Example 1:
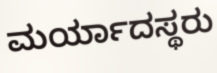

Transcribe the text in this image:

ಮರ್ಯಾದಸ್ಥರು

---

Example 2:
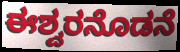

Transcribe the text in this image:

ಈಶ್ವರನೊಡನೆ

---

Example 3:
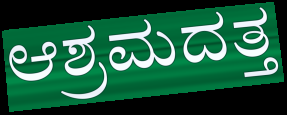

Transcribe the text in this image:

ಆಶ್ರಮದತ್ತ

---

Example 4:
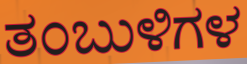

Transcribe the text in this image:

ತಂಬುಳಿಗಳ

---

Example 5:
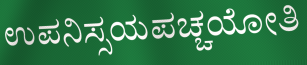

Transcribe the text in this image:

ಉಪನಿಸ್ಸಯಪಚ್ಚಯೋತಿ